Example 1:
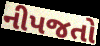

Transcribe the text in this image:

નીપજતો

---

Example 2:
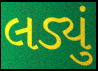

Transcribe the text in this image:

લડ્યું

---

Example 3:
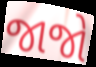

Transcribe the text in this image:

જાજો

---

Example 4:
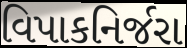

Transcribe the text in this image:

વિપાકનિર્જરા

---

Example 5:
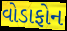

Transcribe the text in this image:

વોડાફોન